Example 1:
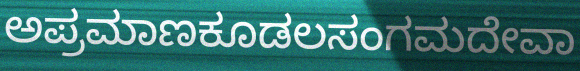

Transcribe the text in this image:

ಅಪ್ರಮಾಣಕೂಡಲಸಂಗಮದೇವಾ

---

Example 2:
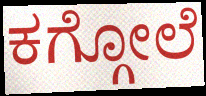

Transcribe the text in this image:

ಕಗ್ಗೋಲೆ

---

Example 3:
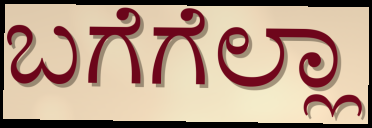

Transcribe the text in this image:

ಬಗೆಗೆಲ್ಲಾ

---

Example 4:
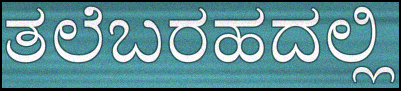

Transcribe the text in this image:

ತಲೆಬರಹದಲ್ಲಿ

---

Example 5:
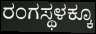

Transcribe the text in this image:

ರಂಗಸ್ಥಳಕ್ಕೂ